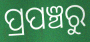
ପ୍ରପଞ୍ଚରୁ